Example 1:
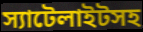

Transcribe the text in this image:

স্যাটেলাইটসহ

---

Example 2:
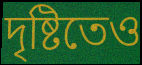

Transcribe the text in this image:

দৃষ্টিতেও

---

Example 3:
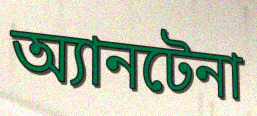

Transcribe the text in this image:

অ্যানটেনা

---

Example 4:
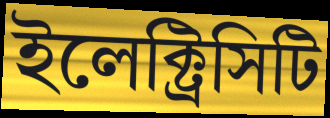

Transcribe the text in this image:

ইলেক্ট্রিসিটি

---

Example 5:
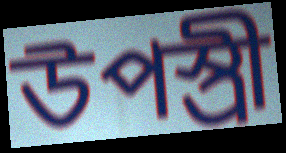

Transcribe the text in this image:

উপস্ত্রী